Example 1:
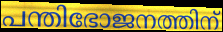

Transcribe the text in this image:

പന്തിഭോജനത്തിന്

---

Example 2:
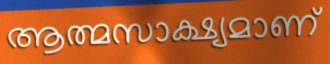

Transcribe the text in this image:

ആത്മസാക്ഷ്യമാണ്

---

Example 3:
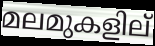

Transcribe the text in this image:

മലമുകളില്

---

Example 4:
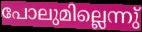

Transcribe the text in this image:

പോലുമില്ലെന്നു്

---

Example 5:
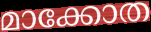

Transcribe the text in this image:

മാക്കോത